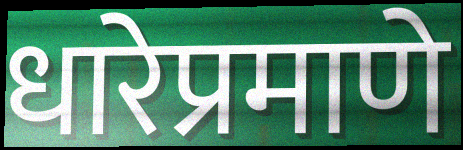
धारेप्रमाणे